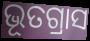
ଭୂତଗ୍ରାସ